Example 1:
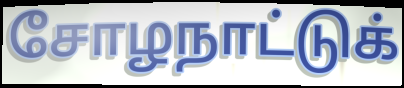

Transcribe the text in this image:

சோழநாட்டுக்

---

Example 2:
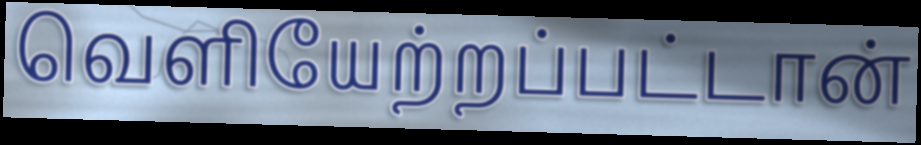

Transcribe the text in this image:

வெளியேற்றப்பட்டான்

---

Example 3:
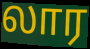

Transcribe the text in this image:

லார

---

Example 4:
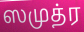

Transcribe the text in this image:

ஸமுத்ர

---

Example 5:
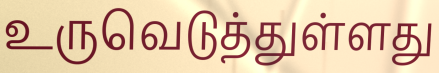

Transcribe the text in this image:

உருவெடுத்துள்ளது